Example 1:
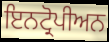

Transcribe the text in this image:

ਇਨਟ੍ਰੋਪੀਅਨ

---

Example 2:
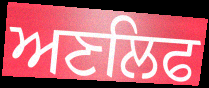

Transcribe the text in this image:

ਅਣਲਿਫ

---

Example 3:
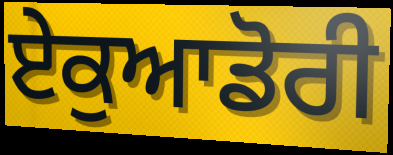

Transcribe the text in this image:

ਏਕੁਆਡੋਰੀ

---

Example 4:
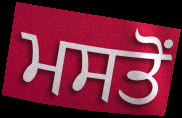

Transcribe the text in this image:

ਮਸਤੋਂ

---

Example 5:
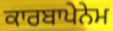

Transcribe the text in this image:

ਕਾਰਬਾਪੇਨੇਮ